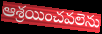
ఆశ్రయించవలెను